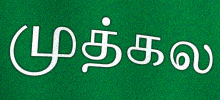
முத்கல